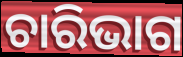
ଚାରିଭାଗ